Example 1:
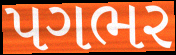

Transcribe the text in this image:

પગભર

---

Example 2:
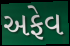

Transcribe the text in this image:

અફેવ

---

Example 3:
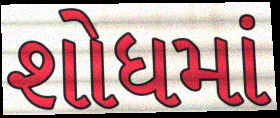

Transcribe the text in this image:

શોધમાં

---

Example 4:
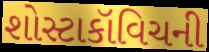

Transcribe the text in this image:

શોસ્ટાકૉવિચની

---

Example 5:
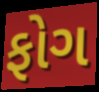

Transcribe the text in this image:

ફોગ